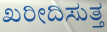
ಖರೀದಿಸುತ್ತ